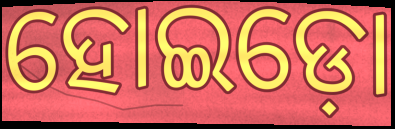
ହୋଇଡ଼ୋ